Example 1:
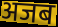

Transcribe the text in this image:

अजब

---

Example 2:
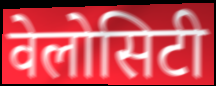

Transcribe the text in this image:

वेलोसिटी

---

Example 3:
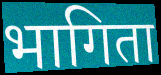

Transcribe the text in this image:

भागिता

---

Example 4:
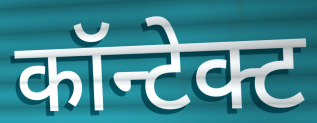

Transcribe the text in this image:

कॉन्टेक्ट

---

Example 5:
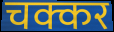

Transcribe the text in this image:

चक्कर